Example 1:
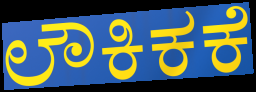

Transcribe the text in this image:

ಲೌಕಿಕಕೆ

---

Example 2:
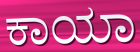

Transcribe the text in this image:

ಕಾಯಾ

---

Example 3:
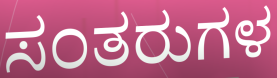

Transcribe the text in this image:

ಸಂತರುಗಳ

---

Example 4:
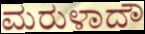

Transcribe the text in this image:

ಮರುಳಾದೌ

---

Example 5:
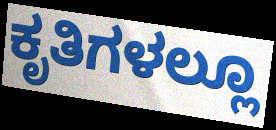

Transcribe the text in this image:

ಕೃತಿಗಳಲ್ಲೂ